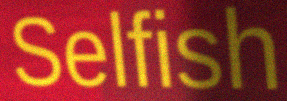
Selfish